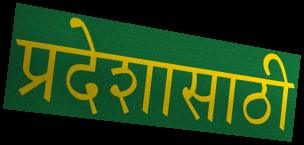
प्रदेशासाठी